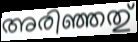
അരിഞ്ഞതു്